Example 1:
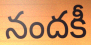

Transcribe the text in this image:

నందకీ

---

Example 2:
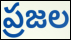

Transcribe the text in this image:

ప్రజల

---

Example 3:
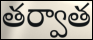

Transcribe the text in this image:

తర్వాత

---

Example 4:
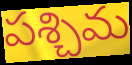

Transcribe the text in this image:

పశ్చిమ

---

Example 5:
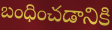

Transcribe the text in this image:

బంధించడానికి